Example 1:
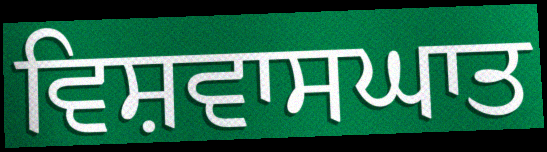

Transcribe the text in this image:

ਵਿਸ਼ਵਾਸਘਾਤ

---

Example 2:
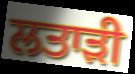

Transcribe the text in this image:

ਲਤਾੜੀ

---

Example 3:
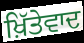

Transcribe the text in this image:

ਖ਼ਿੱਤੇਵਾਦ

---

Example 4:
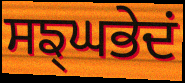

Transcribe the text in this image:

ਸਙ੍ਘਭੇਦਂ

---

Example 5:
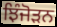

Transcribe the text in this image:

ਝਿੰਜੋੜਨ